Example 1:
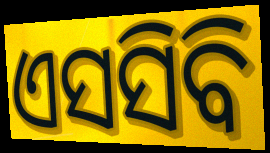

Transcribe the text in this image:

ଏସସିବି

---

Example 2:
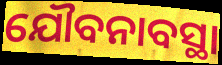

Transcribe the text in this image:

ଯୌବନାବସ୍ଥା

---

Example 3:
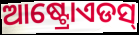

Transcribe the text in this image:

ଆଷ୍ଟ୍ରୋଏଡସ୍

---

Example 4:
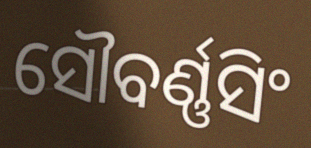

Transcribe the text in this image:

ସୌବର୍ଣ୍ଣସିଂ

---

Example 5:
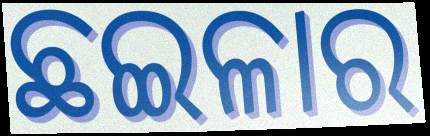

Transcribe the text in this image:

ଛଇଳାର